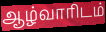
ஆழ்வாரிடம்